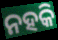
ନହକି